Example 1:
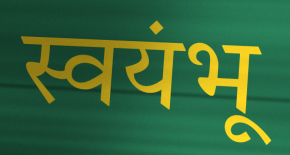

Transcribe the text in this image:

स्वयंभू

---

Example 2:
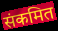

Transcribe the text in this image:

संकमित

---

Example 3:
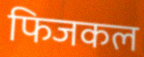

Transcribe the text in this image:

फिजकल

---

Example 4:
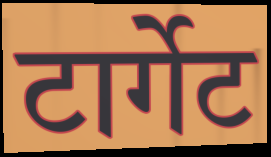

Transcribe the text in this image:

टार्गेट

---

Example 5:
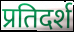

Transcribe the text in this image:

प्रतिदर्श